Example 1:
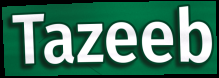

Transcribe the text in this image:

Tazeeb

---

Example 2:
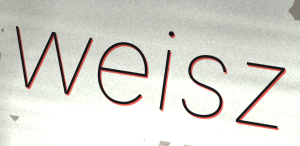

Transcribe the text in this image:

weisz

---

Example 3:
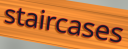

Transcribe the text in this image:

staircases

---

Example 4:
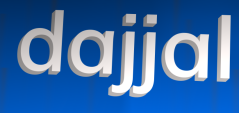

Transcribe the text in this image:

dajjal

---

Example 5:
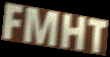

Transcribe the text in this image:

FMHT